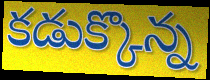
కడుక్కొన్న